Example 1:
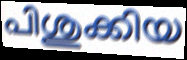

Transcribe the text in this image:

പിശുക്കിയ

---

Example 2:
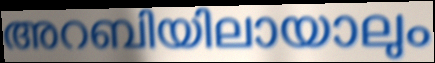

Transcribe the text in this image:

അറബിയിലായാലും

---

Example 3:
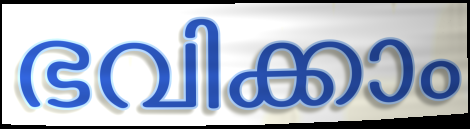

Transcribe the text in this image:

ഭവിക്കാം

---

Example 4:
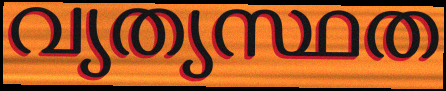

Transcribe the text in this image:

വ്യത്യസ്ഥത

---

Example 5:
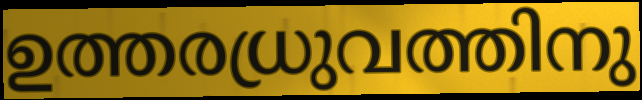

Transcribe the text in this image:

ഉത്തരധ്രുവത്തിനു